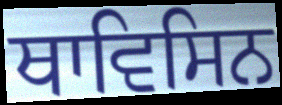
ਥਾਵਿਸਿਨ